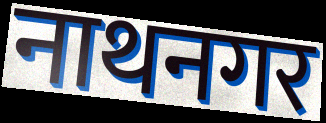
नाथनगर